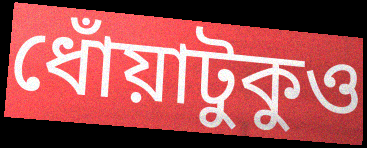
ধোঁয়াটুকুও